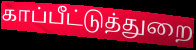
காப்பீட்டுத்துறை